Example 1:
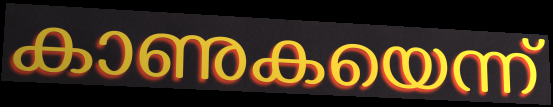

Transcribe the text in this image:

കാണുകയെന്ന്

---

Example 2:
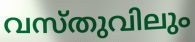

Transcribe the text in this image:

വസ്തുവിലും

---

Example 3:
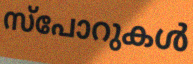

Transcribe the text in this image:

സ്പോറുകൾ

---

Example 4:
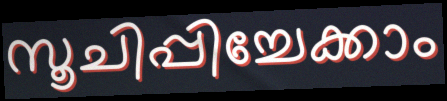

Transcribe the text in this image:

സൂചിപ്പിച്ചേക്കാം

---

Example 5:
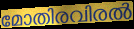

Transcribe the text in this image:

മോതിരവിരൽ